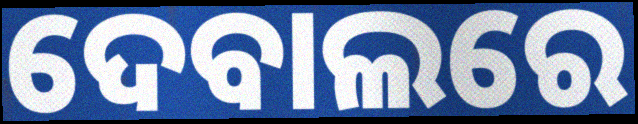
ଦେବାଲରେ